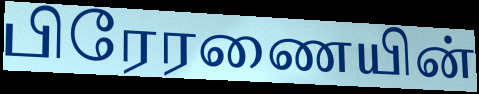
பிரேரணையின்